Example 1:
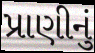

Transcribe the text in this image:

પ્રાણીનું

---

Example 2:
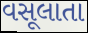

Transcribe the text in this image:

વસૂલાતા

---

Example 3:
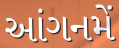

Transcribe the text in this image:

આંગનમેં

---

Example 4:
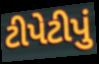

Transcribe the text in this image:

ટીપેટીપું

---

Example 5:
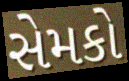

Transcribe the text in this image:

સેમકો